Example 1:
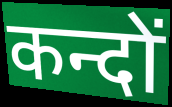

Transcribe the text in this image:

कन्दों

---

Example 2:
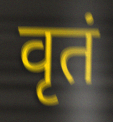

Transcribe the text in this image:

वृतं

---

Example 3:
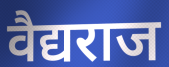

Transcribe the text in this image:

वैद्यराज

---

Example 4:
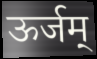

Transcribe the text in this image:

ऊर्जम्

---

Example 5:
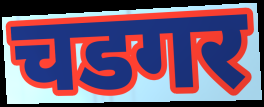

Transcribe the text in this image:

चडगर